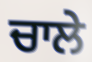
ਚਾਲੇ